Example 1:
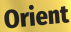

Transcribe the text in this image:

Orient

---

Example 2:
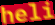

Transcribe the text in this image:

heli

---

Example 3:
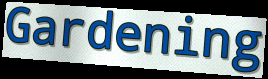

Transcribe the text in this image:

Gardening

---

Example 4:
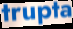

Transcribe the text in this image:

trupta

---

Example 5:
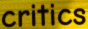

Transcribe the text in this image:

critics